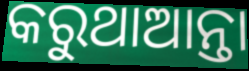
କରୁଥାଆନ୍ତା